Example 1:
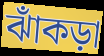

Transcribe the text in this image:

ঝাঁকড়া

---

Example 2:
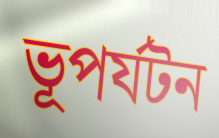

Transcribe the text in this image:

ভূপর্যটন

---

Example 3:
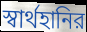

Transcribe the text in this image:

স্বার্থহানির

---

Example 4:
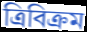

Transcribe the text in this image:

ত্রিবিক্রম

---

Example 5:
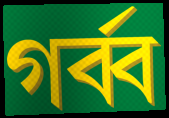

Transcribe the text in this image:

গর্ব্ব